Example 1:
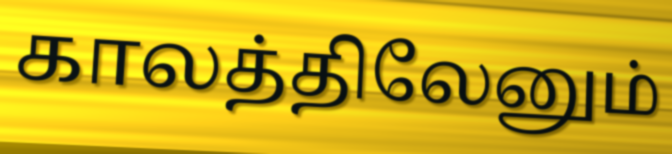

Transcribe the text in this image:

காலத்திலேனும்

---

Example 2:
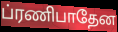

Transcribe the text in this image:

ப்ரணிபாதேன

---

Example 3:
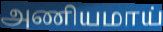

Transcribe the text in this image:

அணியமாய்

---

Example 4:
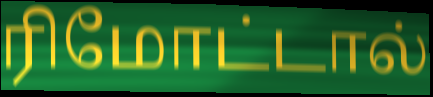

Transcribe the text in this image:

ரிமோட்டால்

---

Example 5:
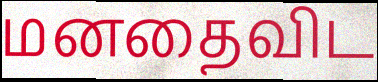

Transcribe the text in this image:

மனதைவிட